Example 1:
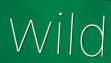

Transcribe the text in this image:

wild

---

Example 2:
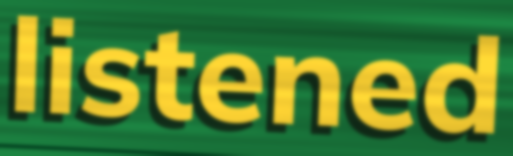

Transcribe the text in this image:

listened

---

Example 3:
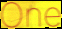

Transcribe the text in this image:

One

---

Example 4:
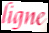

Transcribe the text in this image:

ligne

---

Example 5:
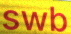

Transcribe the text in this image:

swb